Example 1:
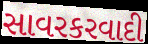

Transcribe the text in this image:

સાવરકરવાદી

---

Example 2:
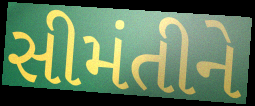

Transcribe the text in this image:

સીમંતીને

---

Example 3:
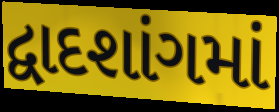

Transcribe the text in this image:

દ્વાદશાંગમાં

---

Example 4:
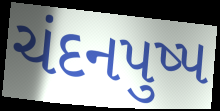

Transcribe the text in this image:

ચંદનપુષ્પ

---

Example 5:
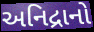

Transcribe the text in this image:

અનિદ્રાનો